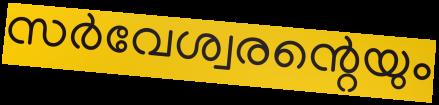
സർവേശ്വരന്റെയും